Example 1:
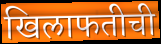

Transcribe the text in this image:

खिलाफतीची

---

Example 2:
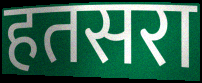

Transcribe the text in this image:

हतसरा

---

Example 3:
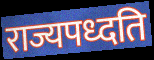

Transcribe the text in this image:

राज्यपध्दति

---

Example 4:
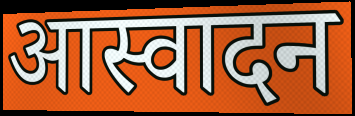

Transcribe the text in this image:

आस्वादन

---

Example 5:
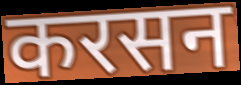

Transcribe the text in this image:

करसन